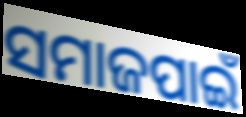
ସମାଜପାଇଁ